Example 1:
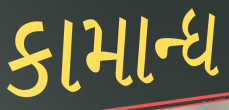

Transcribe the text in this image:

કામાન્ધ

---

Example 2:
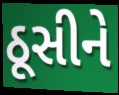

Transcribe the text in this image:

ઠૂસીને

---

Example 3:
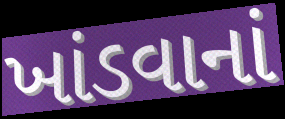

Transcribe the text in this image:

ખાંડવાનાં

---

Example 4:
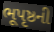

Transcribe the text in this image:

ભૂપૃષ્ઠની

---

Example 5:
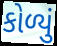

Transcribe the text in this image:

કોળ્યું